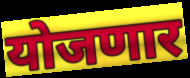
योजणार